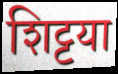
शिट्टया